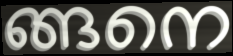
ങ്ങനെ